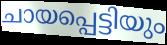
ചായപ്പെട്ടിയും